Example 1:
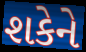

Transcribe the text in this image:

શકેને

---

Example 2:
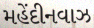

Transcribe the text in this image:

મહેંદીનવાઝ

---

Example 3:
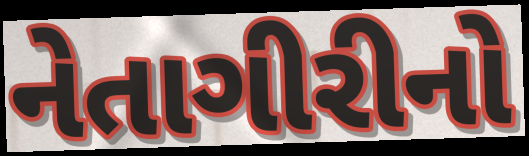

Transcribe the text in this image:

નેતાગીરીનો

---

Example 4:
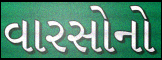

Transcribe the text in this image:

વારસોનો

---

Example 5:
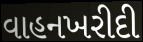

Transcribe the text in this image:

વાહનખરીદી